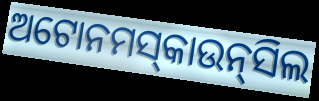
ଅଟୋନମସ୍‌କାଉନ୍‌ସିଲ